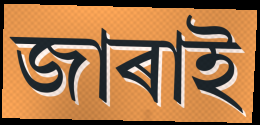
জাৰাই